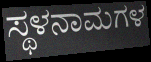
ಸ್ಥಳನಾಮಗಳ